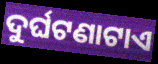
ଦୁର୍ଘଟଣାଟାଏ